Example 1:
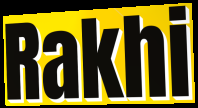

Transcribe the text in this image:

Rakhi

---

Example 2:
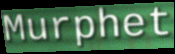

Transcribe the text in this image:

Murphet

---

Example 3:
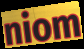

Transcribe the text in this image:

niom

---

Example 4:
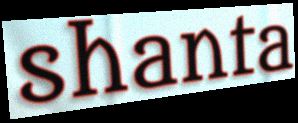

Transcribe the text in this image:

shanta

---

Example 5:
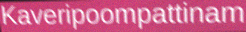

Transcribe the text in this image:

Kaveripoompattinam